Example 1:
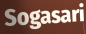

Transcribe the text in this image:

Sogasari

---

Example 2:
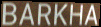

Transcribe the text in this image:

BARKHA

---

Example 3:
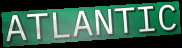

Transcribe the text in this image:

ATLANTIC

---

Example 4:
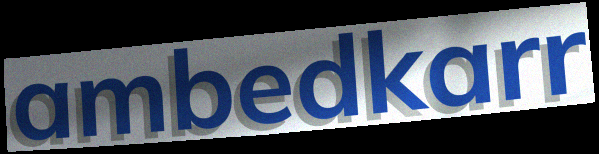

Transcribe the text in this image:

ambedkarr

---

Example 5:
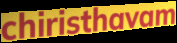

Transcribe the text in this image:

chiristhavam